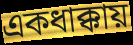
একধাক্কায়